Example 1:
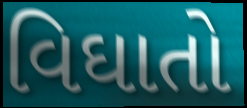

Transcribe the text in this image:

વિઘાતો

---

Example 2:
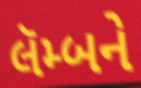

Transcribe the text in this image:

લૅમ્બને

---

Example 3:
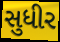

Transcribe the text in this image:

સુધીર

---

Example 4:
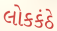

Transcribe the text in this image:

લોકકંઠે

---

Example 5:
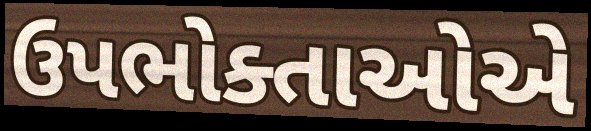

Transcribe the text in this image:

ઉપભોક્તાઓએ